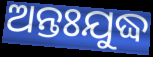
ଅନ୍ତଃଯୁଦ୍ଧ